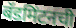
बॅडमिंटनची